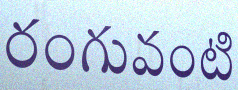
రంగువంటి